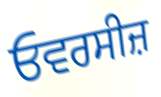
ਓਵਰਸੀਜ਼